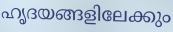
ഹൃദയങ്ങളിലേക്കും